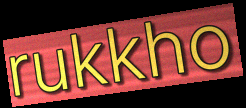
rukkho